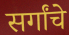
सर्गांचे